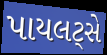
પાયલટ્સે